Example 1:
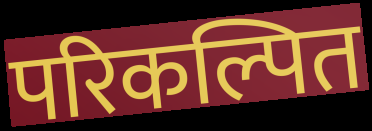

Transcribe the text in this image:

परिकल्पित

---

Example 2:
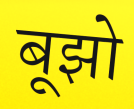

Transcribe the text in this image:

बूझो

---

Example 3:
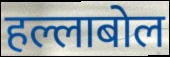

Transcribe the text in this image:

हल्लाबोल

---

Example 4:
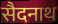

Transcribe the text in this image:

सैदनाथ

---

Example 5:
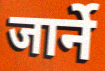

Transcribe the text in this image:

जार्ने